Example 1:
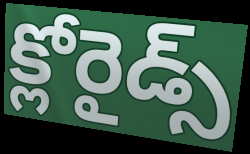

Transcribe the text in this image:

క్లోరైడ్స్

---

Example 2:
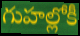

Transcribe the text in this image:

గుహల్లోకీ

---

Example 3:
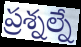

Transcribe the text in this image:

ప్రశ్నల్నే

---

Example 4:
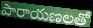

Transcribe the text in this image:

పారాయణలతో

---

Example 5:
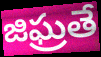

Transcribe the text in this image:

జిఘ్రతే